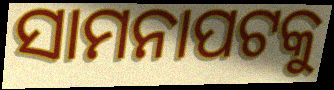
ସାମନାପଟକୁ